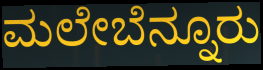
ಮಲೇಬೆನ್ನೂರು